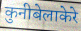
कुनीबेलाकेरे